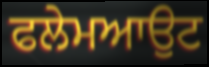
ਫਲੇਮਆਉਟ